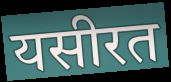
यसीरत